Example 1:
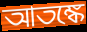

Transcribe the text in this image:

আতঙ্কে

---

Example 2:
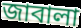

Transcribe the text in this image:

জাবালা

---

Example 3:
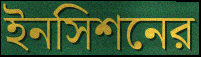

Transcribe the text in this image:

ইনসিশনের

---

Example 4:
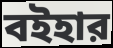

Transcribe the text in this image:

বইহার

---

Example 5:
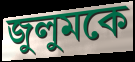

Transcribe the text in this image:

জুলুমকে